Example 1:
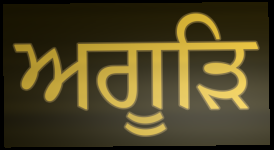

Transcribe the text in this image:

ਅਗੂੜਿ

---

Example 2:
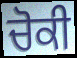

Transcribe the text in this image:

ਚੋਕੀ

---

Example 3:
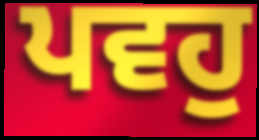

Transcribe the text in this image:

ਪਵਹੁ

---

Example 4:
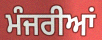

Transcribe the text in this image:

ਮੰਜਰੀਆਂ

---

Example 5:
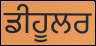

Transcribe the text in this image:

ਡੀਹੂਲਰ